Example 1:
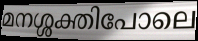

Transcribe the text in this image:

മനശ്ശക്തിപോലെ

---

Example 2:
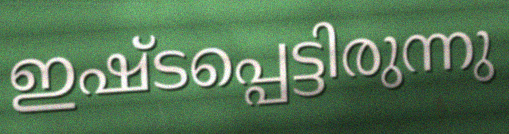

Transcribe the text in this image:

ഇഷ്ടപ്പെട്ടിരുന്നു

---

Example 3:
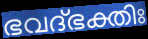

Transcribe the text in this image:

ഭവദ്ഭക്തിഃ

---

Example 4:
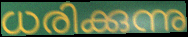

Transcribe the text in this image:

ധരിക്കുന്നു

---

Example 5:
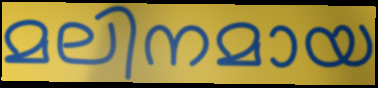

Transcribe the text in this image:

മലിനമായ